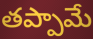
తప్పామే